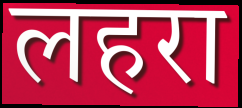
लहरा